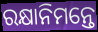
ରକ୍ଷାନିମନ୍ତେ